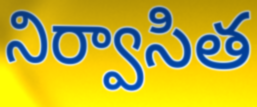
నిర్వాసిత